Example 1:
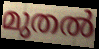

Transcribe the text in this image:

മുതൽ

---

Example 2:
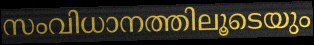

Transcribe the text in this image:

സംവിധാനത്തിലൂടെയും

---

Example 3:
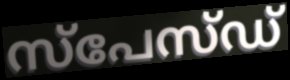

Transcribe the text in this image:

സ്പേസ്ഡ്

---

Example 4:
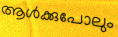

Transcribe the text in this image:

ആൾക്കുപോലും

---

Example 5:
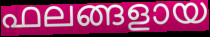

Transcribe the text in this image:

ഫലങ്ങളായ